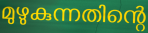
മുഴുകുന്നതിന്റെ